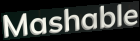
Mashable